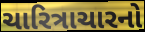
ચારિત્રાચારનો